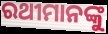
ରଥୀମାନଙ୍କୁ